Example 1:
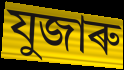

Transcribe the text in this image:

যুজাৰু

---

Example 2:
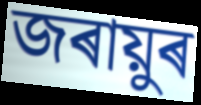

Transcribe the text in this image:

জৰায়ুৰ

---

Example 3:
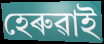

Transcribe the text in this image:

হেৰুৱাই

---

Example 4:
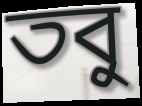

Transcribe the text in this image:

তবু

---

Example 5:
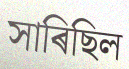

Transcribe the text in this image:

সাৰিছিল